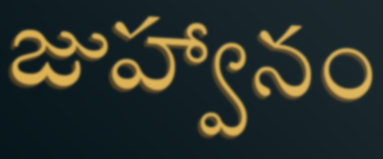
జుహ్వానం